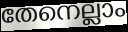
തേനെല്ലാം